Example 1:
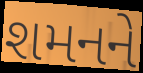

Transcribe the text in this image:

શમનને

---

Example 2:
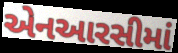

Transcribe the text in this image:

એનઆરસીમાં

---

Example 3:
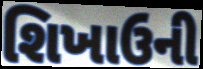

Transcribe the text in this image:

શિખાઉની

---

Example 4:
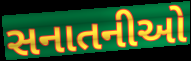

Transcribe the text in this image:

સનાતનીઓ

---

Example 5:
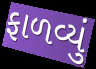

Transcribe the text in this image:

ફાળવ્યું